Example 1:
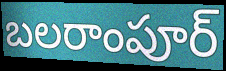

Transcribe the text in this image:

బలరాంపూర్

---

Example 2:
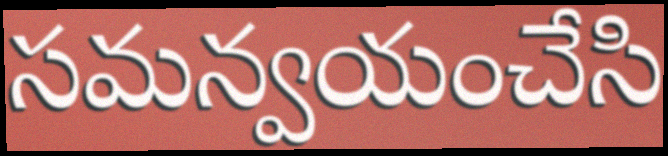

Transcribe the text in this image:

సమన్వయంచేసి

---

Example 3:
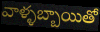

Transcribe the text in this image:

వాళ్ళబ్బాయితో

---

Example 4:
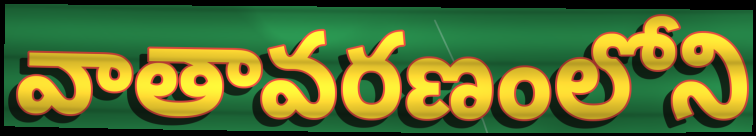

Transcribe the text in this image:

వాతావరణంలోని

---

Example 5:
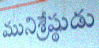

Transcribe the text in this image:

మునిశ్రేష్ఠుడు